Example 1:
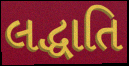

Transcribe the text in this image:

લદ્ધાતિ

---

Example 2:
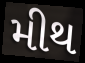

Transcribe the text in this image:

મીથ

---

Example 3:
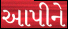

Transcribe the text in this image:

આપીને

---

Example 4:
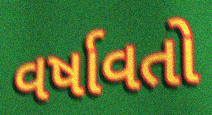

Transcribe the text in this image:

વર્ષાવતો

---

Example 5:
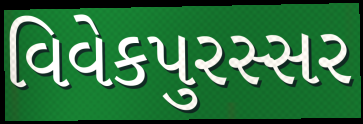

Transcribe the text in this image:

વિવેકપુરસ્સર